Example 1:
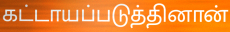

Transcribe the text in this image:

கட்டாயப்படுத்தினான்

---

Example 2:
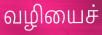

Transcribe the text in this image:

வழியைச்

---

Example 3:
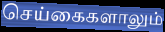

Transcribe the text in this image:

செய்கைகளாலும்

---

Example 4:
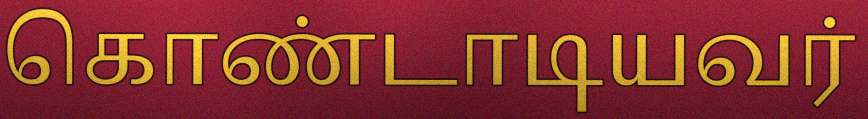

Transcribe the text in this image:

கொண்டாடியவர்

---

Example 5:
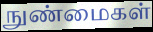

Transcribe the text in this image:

நுண்மைகள்